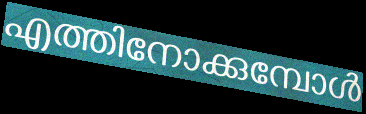
എത്തിനോക്കുമ്പോൾ